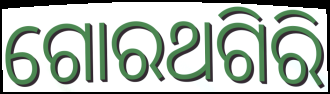
ଗୋରଥଗିରି